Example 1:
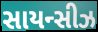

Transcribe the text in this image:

સાયન્સીઝ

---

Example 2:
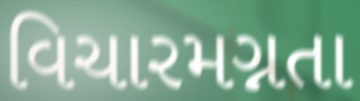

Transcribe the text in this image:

વિચારમગ્નતા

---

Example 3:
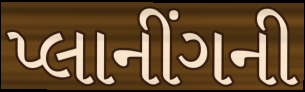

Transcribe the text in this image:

પ્લાનીંગની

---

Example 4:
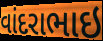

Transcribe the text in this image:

વાંદરાભાઇ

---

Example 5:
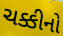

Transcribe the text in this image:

ચક્કીનો